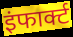
इंफार्क्ट